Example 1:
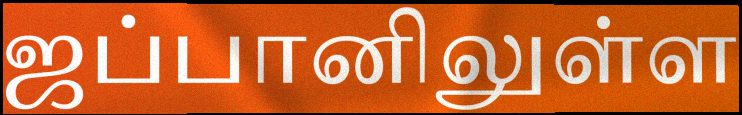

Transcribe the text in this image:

ஜப்பானிலுள்ள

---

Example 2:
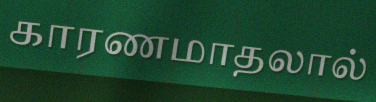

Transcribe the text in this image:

காரணமாதலால்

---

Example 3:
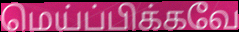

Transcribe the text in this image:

மெய்ப்பிக்கவே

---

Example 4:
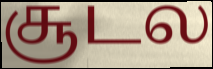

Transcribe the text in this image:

சூடல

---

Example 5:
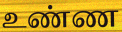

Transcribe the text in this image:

உண்ண